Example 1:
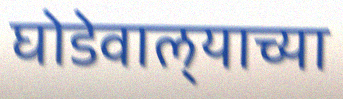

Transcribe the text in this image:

घोडेवाल्याच्या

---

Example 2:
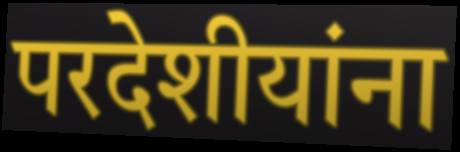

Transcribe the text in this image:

परदेशीयांना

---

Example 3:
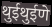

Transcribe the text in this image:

थुईथुईणे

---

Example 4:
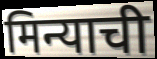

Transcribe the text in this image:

मिन्याची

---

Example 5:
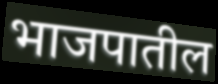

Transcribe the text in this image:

भाजपातील